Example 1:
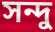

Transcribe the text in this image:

সন্দু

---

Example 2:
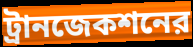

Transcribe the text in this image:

ট্রানজেকশনের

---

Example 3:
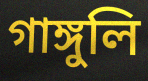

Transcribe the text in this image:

গাঙ্গুলি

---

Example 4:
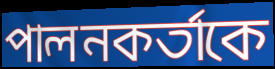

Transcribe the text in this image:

পালনকর্তাকে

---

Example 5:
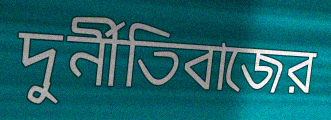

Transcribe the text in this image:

দুর্নীতিবাজের